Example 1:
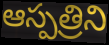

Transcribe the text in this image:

ఆస్పత్రిని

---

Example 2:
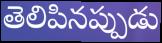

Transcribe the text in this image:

తెలిపినప్పుడు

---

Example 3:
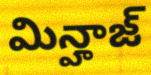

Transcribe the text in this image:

మిన్హాజ్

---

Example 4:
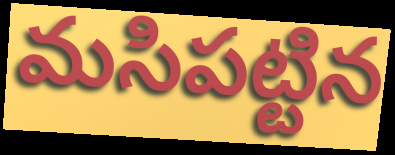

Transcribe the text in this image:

మసిపట్టిన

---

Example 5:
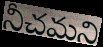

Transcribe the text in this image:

నీచమని